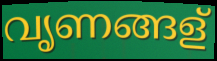
വൃണങ്ങള്